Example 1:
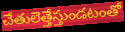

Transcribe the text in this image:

చేతులెత్తేస్తుండటంతో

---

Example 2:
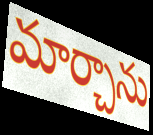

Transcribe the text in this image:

మార్చాను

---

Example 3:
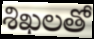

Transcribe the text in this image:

శిఖలతో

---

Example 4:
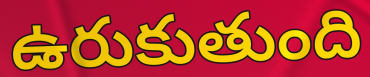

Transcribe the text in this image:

ఉరుకుతుంది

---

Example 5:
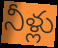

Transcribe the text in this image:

నీళ్లు